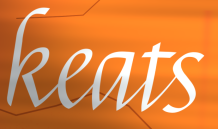
keats